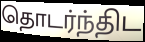
தொடர்ந்திட